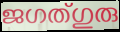
ജഗത്ഗുരു